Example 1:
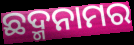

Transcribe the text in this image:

ଛଦ୍ମନାମର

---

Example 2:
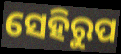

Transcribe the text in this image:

ସେହିରୁପ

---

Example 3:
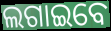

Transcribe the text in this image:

ଲଗାଇବେ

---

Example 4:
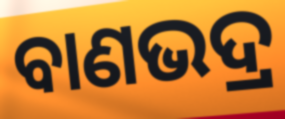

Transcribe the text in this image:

ବାଣଭଦ୍ର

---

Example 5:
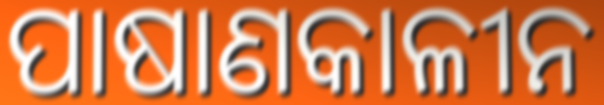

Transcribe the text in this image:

ପାଷାଣକାଳୀନ